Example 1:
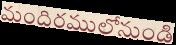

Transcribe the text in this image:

మందిరములోనుండి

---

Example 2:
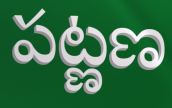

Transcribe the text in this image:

పట్ణణ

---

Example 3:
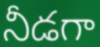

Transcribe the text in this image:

నీడగా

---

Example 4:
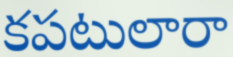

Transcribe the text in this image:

కపటులారా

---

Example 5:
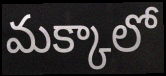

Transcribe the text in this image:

మక్కాలో